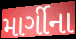
માર્ગીના